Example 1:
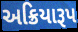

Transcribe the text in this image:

અક્રિયારૂપ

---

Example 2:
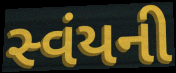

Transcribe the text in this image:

સ્વંયની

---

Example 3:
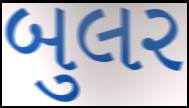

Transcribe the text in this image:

બુલર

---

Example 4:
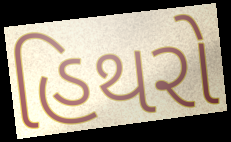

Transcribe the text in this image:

હિથરો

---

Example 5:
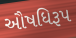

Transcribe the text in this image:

ઔષધિરૂપ